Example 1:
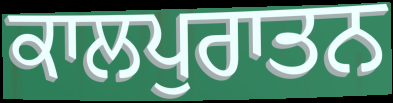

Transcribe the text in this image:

ਕਾਲਪੁਰਾਤਨ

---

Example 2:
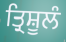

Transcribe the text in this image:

ਤ੍ਰਿਸ਼ੂਲੰ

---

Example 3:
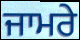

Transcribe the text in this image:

ਜਾਮਰੇ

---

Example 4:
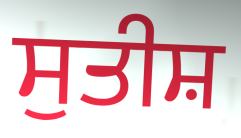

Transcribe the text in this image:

ਸੁਤੀਸ਼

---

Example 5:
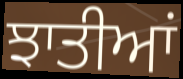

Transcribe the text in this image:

ਝਾਤੀਆਂ